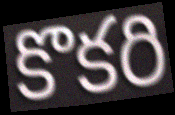
కొకరి